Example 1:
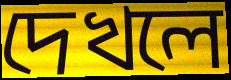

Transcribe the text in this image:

দেখলে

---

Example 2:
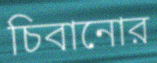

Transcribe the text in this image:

চিবানোর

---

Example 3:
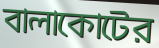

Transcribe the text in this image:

বালাকোটের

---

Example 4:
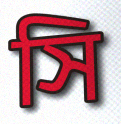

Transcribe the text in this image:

সি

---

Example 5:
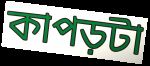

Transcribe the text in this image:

কাপড়টা